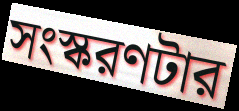
সংস্করণটার